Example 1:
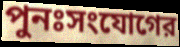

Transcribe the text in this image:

পুনঃসংযোগের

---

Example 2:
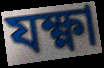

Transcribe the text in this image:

যক্ষ্ণা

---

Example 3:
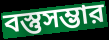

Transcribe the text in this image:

বস্তুসম্ভার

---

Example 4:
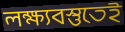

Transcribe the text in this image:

লক্ষ্যবস্তুতেই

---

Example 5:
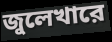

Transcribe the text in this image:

জুলেখারে